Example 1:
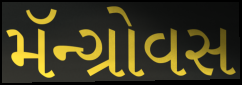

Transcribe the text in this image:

મૅન્ગ્રોવસ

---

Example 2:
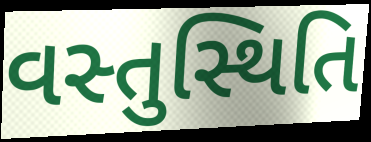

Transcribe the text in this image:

વસ્તુસ્થિતિ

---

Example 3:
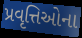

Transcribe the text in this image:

પ્રવૃત્તિઓના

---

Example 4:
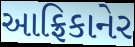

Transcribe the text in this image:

આફ્રિકાનેર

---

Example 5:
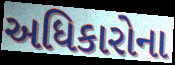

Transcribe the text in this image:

અધિકારોના